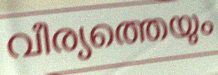
വീര്യത്തെയും